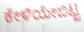
ಕೇಳಿಯೇಬಿಟ್ಟ